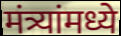
मंत्र्यांमध्ये